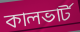
কালভার্ট